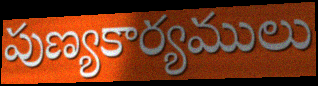
పుణ్యకార్యములు